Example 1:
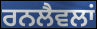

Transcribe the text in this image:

ਰਨਲੈਵਲਾਂ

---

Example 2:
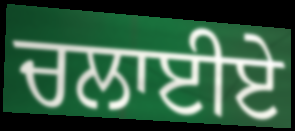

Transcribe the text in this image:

ਚਲਾਈਏ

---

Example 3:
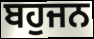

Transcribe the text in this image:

ਬਹੁਜਨ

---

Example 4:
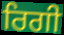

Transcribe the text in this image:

ਰਿਗੀ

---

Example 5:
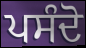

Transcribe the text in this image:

ਪਸੰਦੋ